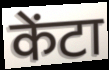
केंटा